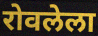
रोवलेला